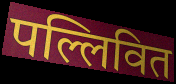
पल्लिवित